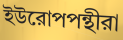
ইউরোপপন্থীরা